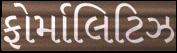
ફોર્માલિટિઝ